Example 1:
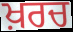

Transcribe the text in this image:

ਖ਼ਰਚ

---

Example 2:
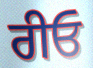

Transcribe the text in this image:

ਰੀਓ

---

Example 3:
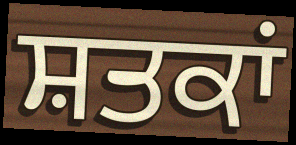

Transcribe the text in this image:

ਸ਼ਤਕਾਂ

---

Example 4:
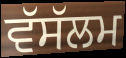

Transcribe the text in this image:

ਵੱਸੱਲਮ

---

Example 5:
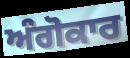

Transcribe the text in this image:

ਅੰਗੋਕਾਰ